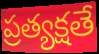
ప్రత్యక్షతే